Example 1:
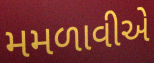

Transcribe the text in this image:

મમળાવીએ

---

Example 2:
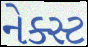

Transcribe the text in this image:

નેક્સ્ટ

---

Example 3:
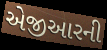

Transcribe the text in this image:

એજીઆરની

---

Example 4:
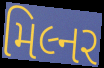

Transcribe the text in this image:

મિલ્નર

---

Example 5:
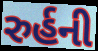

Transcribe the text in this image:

રુર્હની